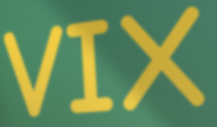
VIX